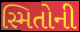
સ્મિતોની